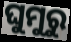
ଘୁମୁରୁ